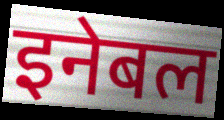
इनेबल